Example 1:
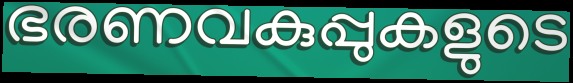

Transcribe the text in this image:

ഭരണവകുപ്പുകളുടെ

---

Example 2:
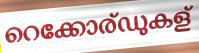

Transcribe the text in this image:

റെക്കോര്ഡുകള്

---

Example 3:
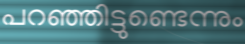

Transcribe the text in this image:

പറഞ്ഞിട്ടുണ്ടെന്നും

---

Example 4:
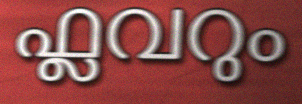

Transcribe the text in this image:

ഫ്ലവറും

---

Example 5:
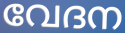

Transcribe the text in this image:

വേദന